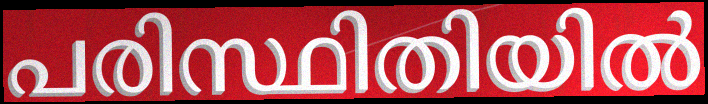
പരിസ്ഥിതിയിൽ